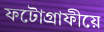
ফটোগ্ৰাফীয়ে